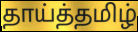
தாய்த்தமிழ்